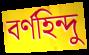
বৰ্ণহিন্দু